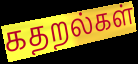
கதறல்கள்